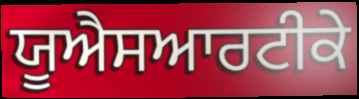
ਯੂਐਸਆਰਟੀਕੇ